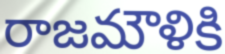
రాజమౌళికి